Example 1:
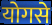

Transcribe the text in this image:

योगसे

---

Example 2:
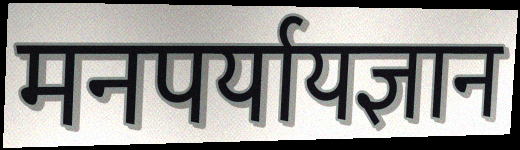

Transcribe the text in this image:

मनपर्यायज्ञान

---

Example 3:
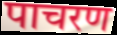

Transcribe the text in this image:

पाचरण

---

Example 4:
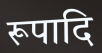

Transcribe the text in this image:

रूपादि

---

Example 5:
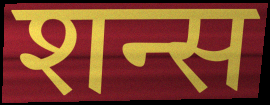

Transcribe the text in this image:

शन्स